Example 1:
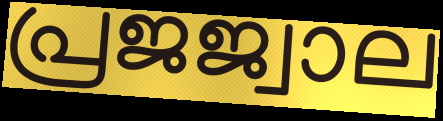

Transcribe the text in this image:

പ്രജജ്വാല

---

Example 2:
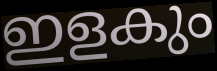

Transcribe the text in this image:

ഇളകും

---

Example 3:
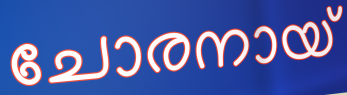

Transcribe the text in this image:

ചോരനായ്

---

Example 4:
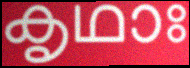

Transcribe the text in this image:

കൃഥാഃ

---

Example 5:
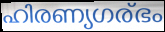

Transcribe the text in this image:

ഹിരണ്യഗര്ഭം